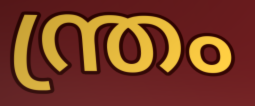
ന്ത്രം